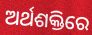
ଅର୍ଥଶକ୍ତିରେ